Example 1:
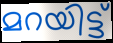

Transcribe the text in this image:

മറയിട്ട്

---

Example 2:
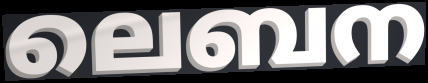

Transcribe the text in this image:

ലെബന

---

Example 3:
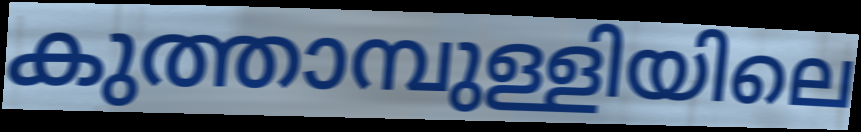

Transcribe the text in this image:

കുത്താമ്പുള്ളിയിലെ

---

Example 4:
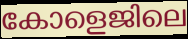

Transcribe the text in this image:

കോളെജിലെ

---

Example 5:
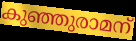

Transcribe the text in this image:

കുഞ്ഞുരാമന്